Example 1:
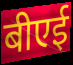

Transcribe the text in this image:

बीएई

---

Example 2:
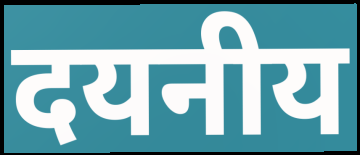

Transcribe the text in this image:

दयनीय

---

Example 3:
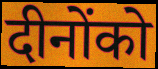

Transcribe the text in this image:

दीनोंको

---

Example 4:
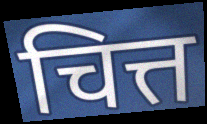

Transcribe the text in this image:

चित्त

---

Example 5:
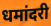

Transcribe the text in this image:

धमांदरी